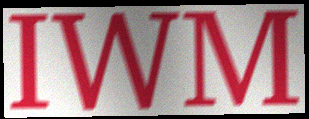
IWM